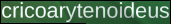
cricoarytenoideus